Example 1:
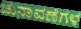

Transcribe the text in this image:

ಚುನಾವಣೆಗಳ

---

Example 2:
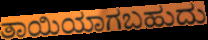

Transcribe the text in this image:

ತಾಯಿಯಾಗಬಹುದು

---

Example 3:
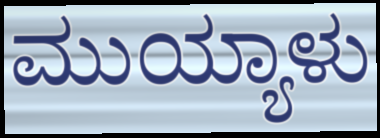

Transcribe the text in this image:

ಮುಯ್ಯಾಳು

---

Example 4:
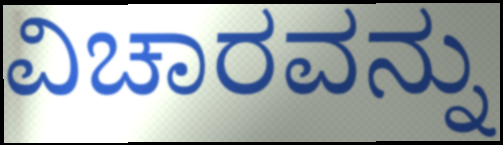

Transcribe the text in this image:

ವಿಚಾರವನ್ನು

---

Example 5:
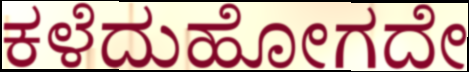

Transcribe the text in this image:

ಕಳೆದುಹೋಗದೇ